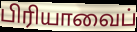
பிரியாவைப்